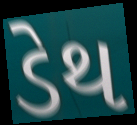
ડેથ